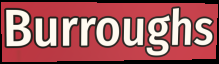
Burroughs